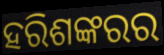
ହରିଶଙ୍କରର